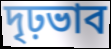
দৃঢ়ভাব